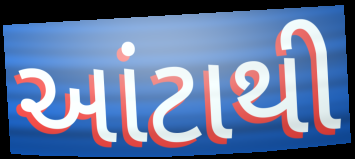
આંટાથી